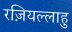
रज़ियल्लाहु